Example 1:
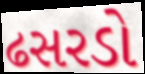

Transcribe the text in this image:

ઢસરડો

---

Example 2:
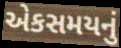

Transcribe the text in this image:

એકસમયનું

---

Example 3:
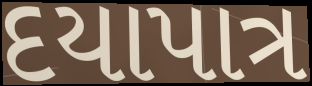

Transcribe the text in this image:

દયાપાત્ર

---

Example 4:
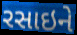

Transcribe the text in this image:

રસાઇને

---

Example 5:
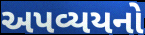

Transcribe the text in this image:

અપવ્યયનો